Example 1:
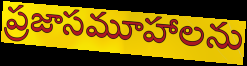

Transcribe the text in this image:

ప్రజాసమూహాలను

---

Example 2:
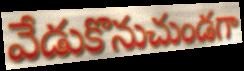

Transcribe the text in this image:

వేడుకొనుచుండగా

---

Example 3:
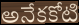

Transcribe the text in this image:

అనేకకోటి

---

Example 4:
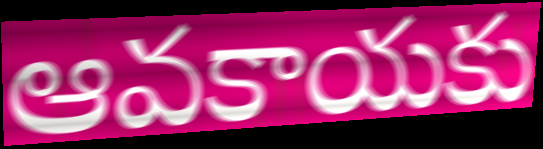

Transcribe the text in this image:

ఆవకాయకు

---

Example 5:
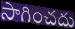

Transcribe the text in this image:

సాగించదు